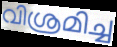
വിശ്രമിച്ച